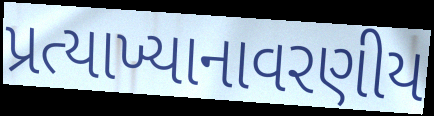
પ્રત્યાખ્યાનાવરણીય